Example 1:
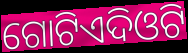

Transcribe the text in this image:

ଗୋଟିଏଦିଓଟି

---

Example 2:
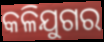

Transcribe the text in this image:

କଳିଯୁଗର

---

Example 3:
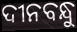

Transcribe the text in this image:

ଦୀନବନ୍ଧୁ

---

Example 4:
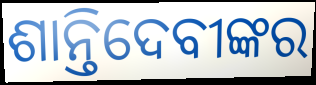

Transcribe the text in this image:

ଶାନ୍ତିଦେବୀଙ୍କର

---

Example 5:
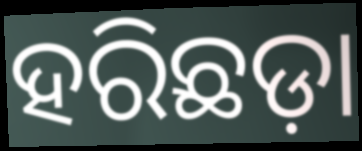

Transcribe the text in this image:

ହରିଛଡ଼ା